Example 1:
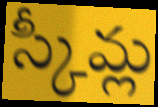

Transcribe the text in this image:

స్కీమ్ల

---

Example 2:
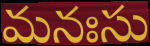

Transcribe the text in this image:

మనఃసు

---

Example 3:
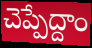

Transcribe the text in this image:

చెప్పేద్దాం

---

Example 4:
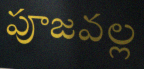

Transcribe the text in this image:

పూజవల్ల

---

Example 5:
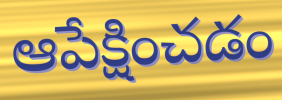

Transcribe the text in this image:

ఆపేక్షించడం